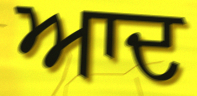
ਆਦ